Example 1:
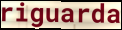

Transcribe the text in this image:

riguarda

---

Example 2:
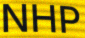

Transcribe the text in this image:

NHP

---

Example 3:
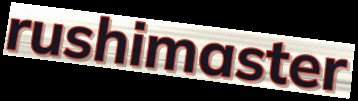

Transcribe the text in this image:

rushimaster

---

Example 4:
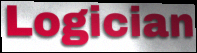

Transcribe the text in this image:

Logician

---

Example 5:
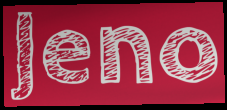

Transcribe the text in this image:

Jeno